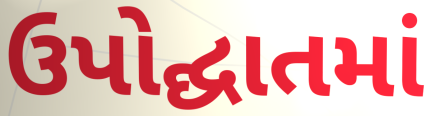
ઉપોદ્ઘાતમાં